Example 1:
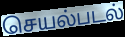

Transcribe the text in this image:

செயல்படல்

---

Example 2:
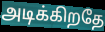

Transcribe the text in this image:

அடிக்கிறதே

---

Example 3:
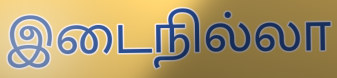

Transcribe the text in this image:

இடைநில்லா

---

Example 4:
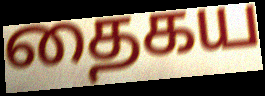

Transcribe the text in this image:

தைகய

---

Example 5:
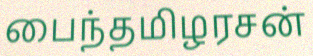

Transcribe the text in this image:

பைந்தமிழரசன்